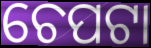
ଚେପଟା